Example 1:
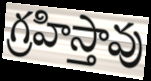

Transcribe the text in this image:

గ్రహిస్తావు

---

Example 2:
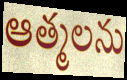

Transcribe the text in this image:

ఆత్మలను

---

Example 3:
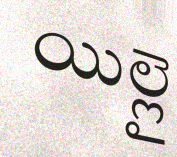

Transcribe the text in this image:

యిల్లై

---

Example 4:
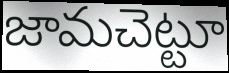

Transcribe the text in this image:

జామచెట్టూ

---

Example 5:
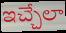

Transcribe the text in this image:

ఇచ్చేలా